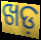
ଖଡ଼